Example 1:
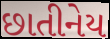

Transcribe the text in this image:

છાતીનેય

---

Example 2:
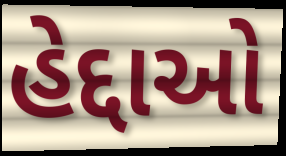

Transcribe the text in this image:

હેદ્દાઓ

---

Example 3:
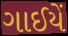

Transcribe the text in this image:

ગાઈયેં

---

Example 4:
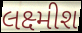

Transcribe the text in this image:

લક્ષ્મીશ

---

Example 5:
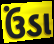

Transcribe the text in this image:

ઉંડા